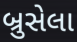
બ્રુસેલા